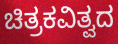
ಚಿತ್ರಕವಿತ್ವದ